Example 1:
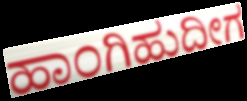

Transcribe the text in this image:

ಹಾಂಗಿಹುದೀಗ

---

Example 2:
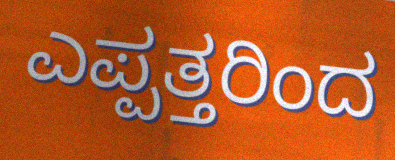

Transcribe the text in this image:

ಎಪ್ಪತ್ತರಿಂದ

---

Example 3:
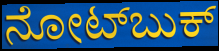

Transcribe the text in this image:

ನೋಟ್‌ಬುಕ್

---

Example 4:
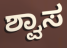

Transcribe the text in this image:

ಶ್ವಾಸ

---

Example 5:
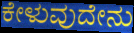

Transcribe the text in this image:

ಕೇಳುವುದೇನು